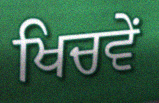
ਖਿਚਵੇਂ